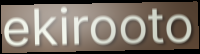
ekirooto